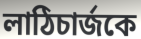
লাঠিচার্জকে